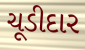
ચૂડીદાર